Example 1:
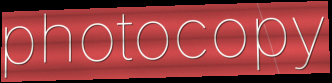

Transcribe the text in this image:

photocopy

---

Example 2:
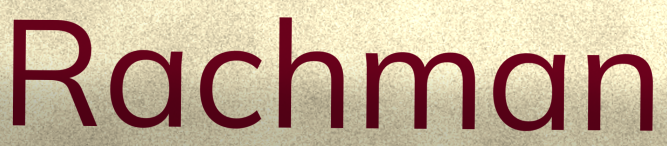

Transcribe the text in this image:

Rachman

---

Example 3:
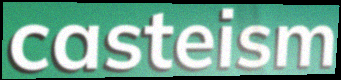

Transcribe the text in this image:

casteism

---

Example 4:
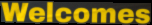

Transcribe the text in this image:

Welcomes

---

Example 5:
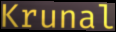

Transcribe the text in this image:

Krunal